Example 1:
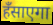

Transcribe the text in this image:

हँसाएगा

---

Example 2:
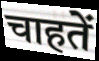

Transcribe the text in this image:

चाहतें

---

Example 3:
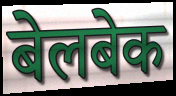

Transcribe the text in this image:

बेलबेक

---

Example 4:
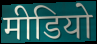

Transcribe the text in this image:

मीडियो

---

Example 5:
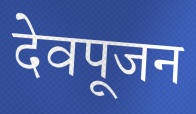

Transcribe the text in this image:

देवपूजन